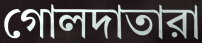
গোলদাতারা